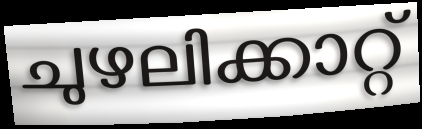
ചുഴലിക്കാറ്റ്